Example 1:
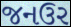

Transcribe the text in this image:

જનઉર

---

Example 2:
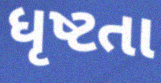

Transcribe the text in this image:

ધૃષ્ટતા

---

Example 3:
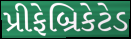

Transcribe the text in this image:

પ્રીફેબ્રિકેટેડ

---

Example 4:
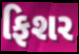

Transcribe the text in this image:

ફિશર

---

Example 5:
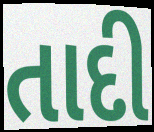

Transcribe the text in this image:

તાદી